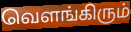
வெளங்கிரும்